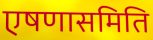
एषणासमिति